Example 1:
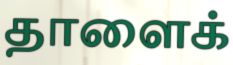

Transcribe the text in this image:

தாளைக்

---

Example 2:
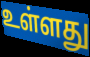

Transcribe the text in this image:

உள்ளது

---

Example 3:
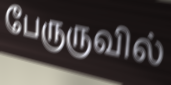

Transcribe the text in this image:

பேருருவில்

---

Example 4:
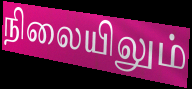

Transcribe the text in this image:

நிலையிலும்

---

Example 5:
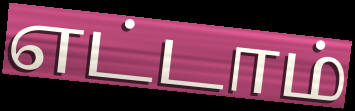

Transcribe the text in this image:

எட்டாம்